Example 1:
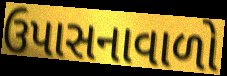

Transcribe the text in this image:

ઉપાસનાવાળો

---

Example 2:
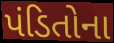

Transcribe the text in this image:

પંડિતોના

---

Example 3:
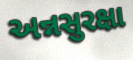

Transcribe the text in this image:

અન્નસુરક્ષા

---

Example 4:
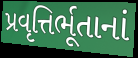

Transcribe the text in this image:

પ્રવૃત્તિર્ભૂતાનાં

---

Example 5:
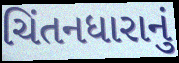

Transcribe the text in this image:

ચિંતનધારાનું